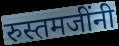
रुस्तमजींनी